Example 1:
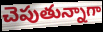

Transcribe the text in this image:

చెపుతున్నాగా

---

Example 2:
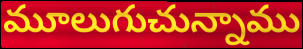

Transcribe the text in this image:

మూలుగుచున్నాము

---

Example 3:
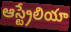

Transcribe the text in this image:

ఆస్ట్రేలియా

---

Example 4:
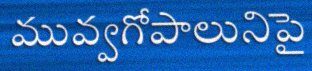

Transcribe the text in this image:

మువ్వగోపాలునిపై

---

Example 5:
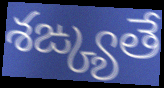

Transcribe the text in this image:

శఙ్క్యతే